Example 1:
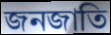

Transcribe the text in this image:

জনজাতি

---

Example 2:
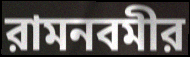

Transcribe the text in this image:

রামনবমীর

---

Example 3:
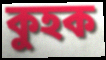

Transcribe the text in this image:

কুহক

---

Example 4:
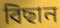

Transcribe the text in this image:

বিছান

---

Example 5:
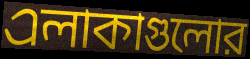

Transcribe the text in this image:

এলাকাগুলোর